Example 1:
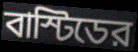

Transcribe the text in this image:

বাস্টিডের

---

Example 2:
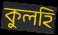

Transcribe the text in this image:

কুলহি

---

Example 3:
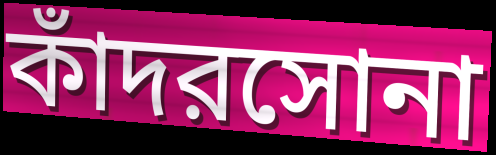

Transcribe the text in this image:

কাঁদরসোনা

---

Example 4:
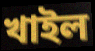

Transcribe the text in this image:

খাইল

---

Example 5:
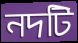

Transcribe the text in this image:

নদটি